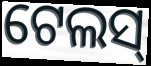
ଟେଲସ୍